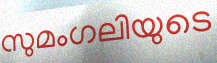
സുമംഗലിയുടെ